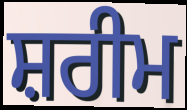
ਸ਼ਰੀਮ